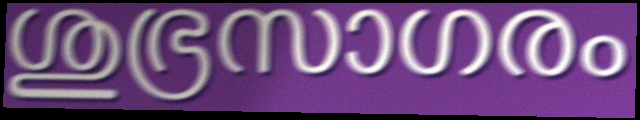
ശുഭ്രസാഗരം